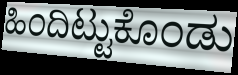
ಹಿಂದಿಟ್ಟುಕೊಂಡು